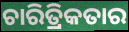
ଚାରିତ୍ରିକତାର